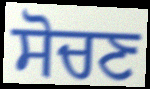
ਸੋਚਣ